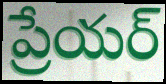
ప్రేయర్